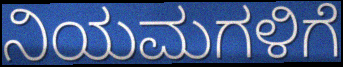
ನಿಯಮಗಳಿಗೆ